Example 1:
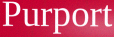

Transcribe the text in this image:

Purport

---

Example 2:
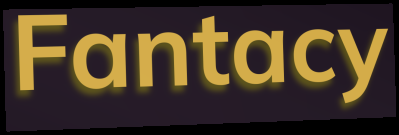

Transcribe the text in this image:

Fantacy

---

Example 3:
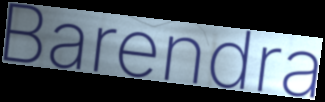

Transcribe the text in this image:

Barendra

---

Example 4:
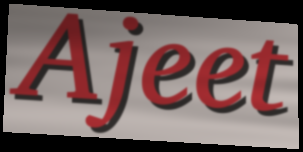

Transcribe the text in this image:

Ajeet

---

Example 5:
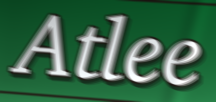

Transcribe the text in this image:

Atlee